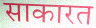
साकारत